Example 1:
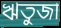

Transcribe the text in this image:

ঋতুজা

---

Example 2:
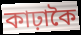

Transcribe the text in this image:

কাঢ়াকৈ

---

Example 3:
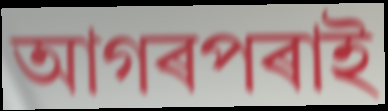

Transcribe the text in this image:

আগৰপৰাই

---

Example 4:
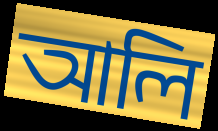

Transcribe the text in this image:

আলি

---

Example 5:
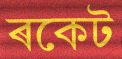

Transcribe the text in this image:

ৰকেট